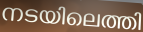
നടയിലെത്തി